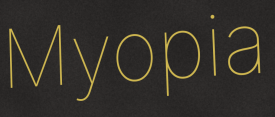
Myopia